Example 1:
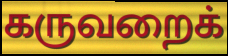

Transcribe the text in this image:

கருவறைக்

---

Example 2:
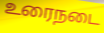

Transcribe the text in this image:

உரைநடை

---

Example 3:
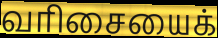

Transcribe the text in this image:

வரிசையைக்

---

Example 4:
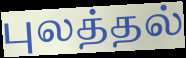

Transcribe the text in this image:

புலத்தல்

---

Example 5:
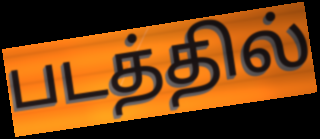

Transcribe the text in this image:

படத்தில்